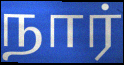
நார்